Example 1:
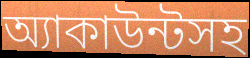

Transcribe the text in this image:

অ্যাকাউন্টসহ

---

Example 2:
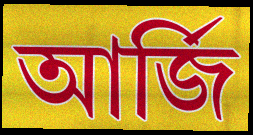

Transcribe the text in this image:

আর্জি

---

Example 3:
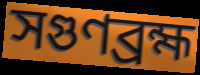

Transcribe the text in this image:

সগুণব্রহ্ম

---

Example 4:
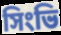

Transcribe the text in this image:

সিংভি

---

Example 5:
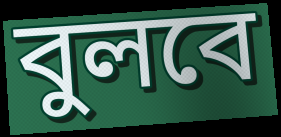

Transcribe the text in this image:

বুলবে